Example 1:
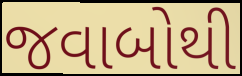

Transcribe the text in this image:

જવાબોથી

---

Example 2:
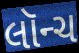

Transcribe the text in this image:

લૉન્ચ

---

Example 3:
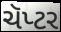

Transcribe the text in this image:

ચૅપ્ટર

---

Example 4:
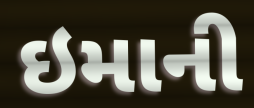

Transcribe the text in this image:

ઇમાની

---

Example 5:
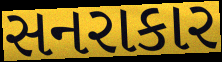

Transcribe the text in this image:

સનરાકાર